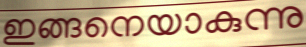
ഇങ്ങനെയാകുന്നു